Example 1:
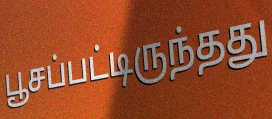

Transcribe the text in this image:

பூசப்பட்டிருந்தது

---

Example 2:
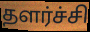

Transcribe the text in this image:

தளர்ச்சி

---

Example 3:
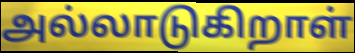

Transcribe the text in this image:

அல்லாடுகிறாள்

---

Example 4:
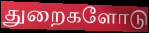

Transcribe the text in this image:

துறைகளோடு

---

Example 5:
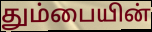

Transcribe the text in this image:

தும்பையின்